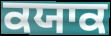
ਕਯਾਕ